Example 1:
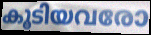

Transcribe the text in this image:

കൂടിയവരോ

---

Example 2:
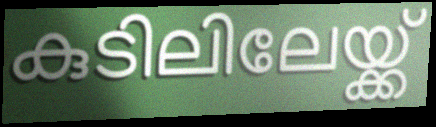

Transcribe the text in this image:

കുടിലിലേയ്ക്ക്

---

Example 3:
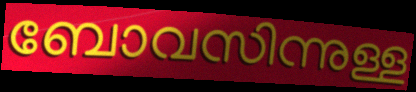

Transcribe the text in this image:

ബോവസിന്നുള്ള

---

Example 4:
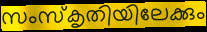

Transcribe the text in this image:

സംസ്കൃതിയിലേക്കും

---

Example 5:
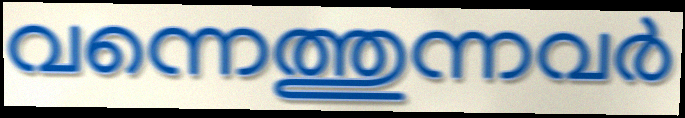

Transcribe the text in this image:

വന്നെത്തുന്നവർ